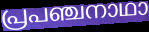
പ്രപഞ്ചനാഥാ